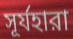
সূর্যহারা